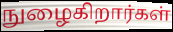
நுழைகிறார்கள்